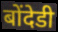
बोंदेडी